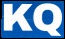
KQ